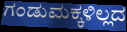
ಗಂಡುಮಕ್ಕಳಿಲ್ಲದ